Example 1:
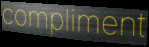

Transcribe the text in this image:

compliment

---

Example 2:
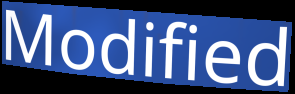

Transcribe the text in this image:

Modified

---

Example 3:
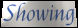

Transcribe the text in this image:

Showing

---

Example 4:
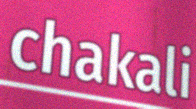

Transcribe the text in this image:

chakali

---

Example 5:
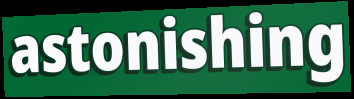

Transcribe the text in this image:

astonishing